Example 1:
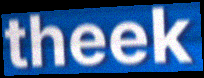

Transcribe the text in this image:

theek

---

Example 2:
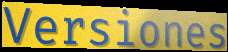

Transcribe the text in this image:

Versiones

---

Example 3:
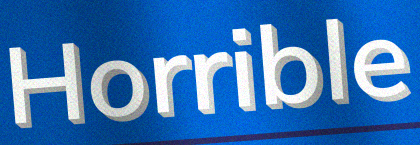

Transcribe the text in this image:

Horrible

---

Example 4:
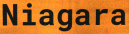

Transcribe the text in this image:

Niagara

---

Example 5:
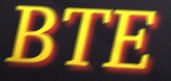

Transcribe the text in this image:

BTE